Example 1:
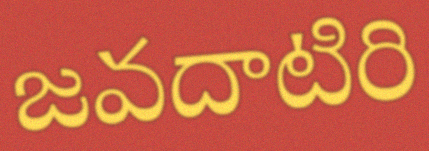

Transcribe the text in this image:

జవదాటిరి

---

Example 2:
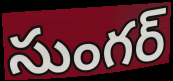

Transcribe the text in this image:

సుంగర్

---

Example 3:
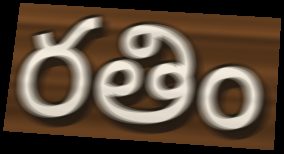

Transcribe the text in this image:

రతిం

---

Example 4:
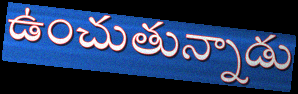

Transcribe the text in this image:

ఉంచుతున్నాడు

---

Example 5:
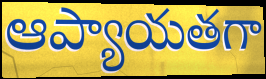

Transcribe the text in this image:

ఆప్యాయతగా